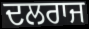
ਦਲਰਾਜ